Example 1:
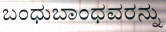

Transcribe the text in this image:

ಬಂಧುಬಾಂಧವರನ್ನು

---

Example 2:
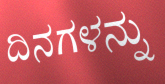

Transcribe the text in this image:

ದಿನಗಳನ್ನು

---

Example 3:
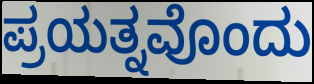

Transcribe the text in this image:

ಪ್ರಯತ್ನವೊಂದು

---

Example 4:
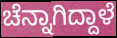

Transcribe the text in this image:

ಚೆನ್ನಾಗಿದ್ದಾಳೆ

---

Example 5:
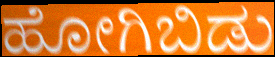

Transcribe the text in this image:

ಹೋಗಿಬಿಡು